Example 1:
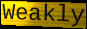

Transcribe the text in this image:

Weakly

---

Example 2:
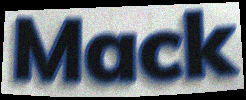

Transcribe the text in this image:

Mack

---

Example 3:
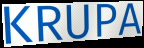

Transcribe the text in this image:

KRUPA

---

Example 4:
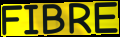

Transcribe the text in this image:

FIBRE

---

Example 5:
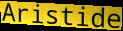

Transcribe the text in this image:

Aristide